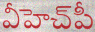
వీహెచ్‌పీ